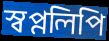
স্বপ্নলিপি